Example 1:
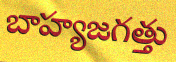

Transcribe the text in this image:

బాహ్యజగత్తు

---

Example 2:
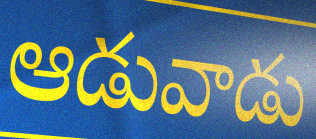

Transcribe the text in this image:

ఆడువాడు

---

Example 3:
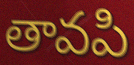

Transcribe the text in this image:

తావపి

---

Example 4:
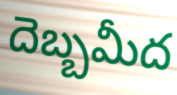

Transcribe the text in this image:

దెబ్బమీద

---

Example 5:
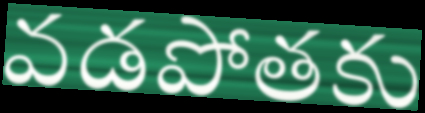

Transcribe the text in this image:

వడపోతకు